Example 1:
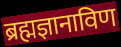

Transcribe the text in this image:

ब्रह्मज्ञानाविण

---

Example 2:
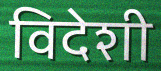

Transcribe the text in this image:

विदेशी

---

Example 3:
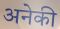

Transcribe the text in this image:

अनेकी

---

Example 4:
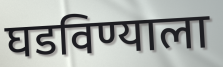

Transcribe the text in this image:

घडविण्याला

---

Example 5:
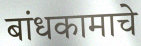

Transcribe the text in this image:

बांधकामाचे